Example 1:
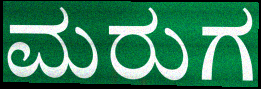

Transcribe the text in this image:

ಮರುಗ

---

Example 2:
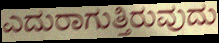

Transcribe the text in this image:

ಎದುರಾಗುತ್ತಿರುವುದು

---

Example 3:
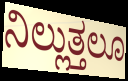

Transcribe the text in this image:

ನಿಲ್ಲುತ್ತಲೂ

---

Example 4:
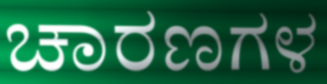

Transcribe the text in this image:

ಚಾರಣಗಳ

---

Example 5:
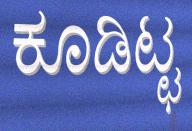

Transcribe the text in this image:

ಕೂಡಿಟ್ಟ